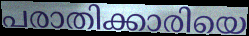
പരാതിക്കാരിയെ